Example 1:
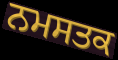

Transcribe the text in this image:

ਨਮਸਤਕ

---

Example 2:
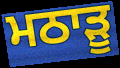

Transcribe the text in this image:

ਮਠਾੜੂ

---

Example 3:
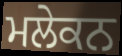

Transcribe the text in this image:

ਮਲੇਕਨ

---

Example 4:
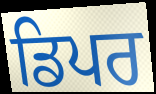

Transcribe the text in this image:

ਡਿਪਰ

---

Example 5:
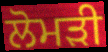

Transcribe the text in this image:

ਲੋਮੜੀ